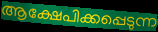
ആക്ഷേപിക്കപ്പെടുന്ന